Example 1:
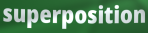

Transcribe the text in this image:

superposition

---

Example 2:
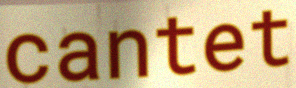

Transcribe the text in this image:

cantet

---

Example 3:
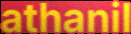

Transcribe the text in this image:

athanil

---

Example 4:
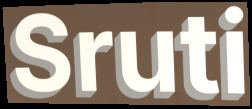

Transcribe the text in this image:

Sruti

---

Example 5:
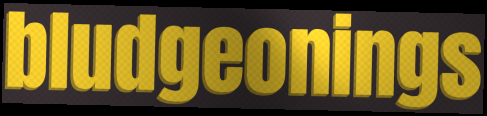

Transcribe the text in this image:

bludgeonings